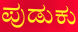
ಪುಡುಕು